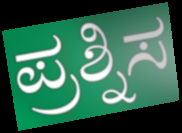
ಪ್ರಶ್ನಿಸ